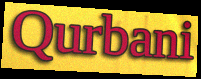
Qurbani